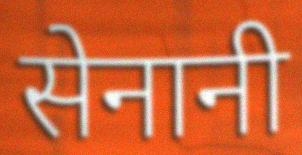
सेनानी